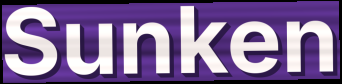
Sunken